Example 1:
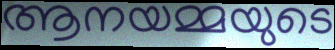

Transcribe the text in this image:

ആനയമ്മയുടെ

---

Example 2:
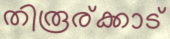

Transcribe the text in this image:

തിരൂര്ക്കാട്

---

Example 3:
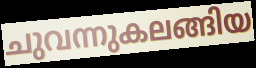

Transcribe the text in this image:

ചുവന്നുകലങ്ങിയ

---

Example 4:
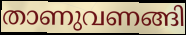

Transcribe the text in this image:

താണുവണങ്ങി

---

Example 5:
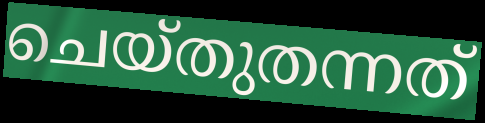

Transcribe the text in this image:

ചെയ്തുതന്നത്